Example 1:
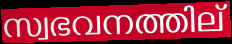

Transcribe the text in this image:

സ്വഭവനത്തില്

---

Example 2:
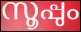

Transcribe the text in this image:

സൂപ്പും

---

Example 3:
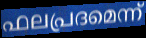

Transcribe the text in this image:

ഫലപ്രദമെന്ന്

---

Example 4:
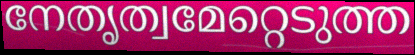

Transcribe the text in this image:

നേതൃത്വമേറ്റെടുത്ത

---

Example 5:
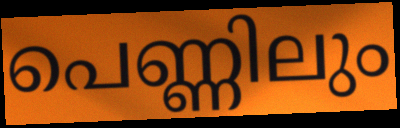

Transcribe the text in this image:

പെണ്ണിലും